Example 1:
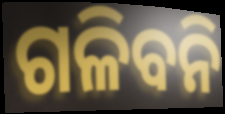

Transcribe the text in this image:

ଗଳିବନି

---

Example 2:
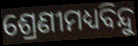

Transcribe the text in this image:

ଶ୍ରେଣୀମଧ୍ୟବିନ୍ଦୁ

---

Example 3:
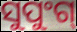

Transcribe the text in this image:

ସୁପୁଂଗ୍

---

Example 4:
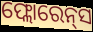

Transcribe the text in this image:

ଫ୍ଲୋରେନ୍‌ସ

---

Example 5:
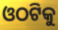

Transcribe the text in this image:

ଓଠଟିକୁ